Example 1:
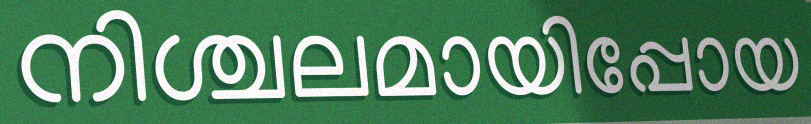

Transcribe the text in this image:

നിശ്ചലമായിപ്പോയ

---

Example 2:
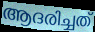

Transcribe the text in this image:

ആദരിച്ചത്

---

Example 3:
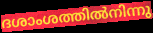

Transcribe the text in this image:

ദശാംശത്തിൽനിന്നു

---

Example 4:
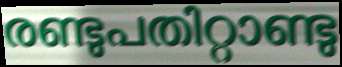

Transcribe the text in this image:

രണ്ടുപതിറ്റാണ്ടു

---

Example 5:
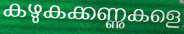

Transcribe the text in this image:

കഴുകക്കണ്ണുകളെ